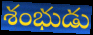
శంభుడు